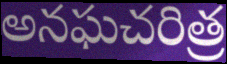
అనఘచరిత్ర